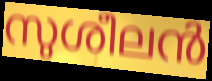
സുശീലൻ